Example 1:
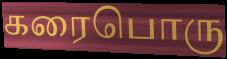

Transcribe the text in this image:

கரைபொரு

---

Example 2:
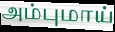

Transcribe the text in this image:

அம்புமாய்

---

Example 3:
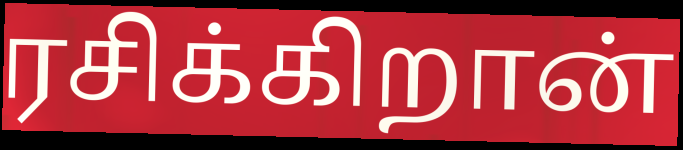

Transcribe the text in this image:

ரசிக்கிறான்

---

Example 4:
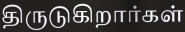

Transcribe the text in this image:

திருடுகிறார்கள்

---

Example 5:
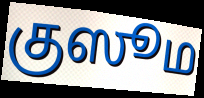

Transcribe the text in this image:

குஸூம